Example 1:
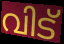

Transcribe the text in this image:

വിട്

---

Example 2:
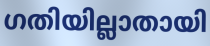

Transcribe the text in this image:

ഗതിയില്ലാതായി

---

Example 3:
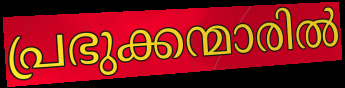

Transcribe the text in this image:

പ്രഭുക്കന്മാരിൽ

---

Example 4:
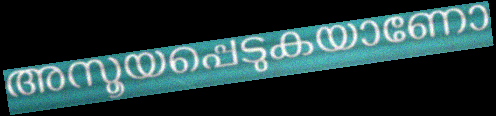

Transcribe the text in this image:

അസൂയപ്പെടുകയാണോ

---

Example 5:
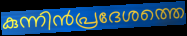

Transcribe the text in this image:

കുന്നിൻപ്രദേശത്തെ